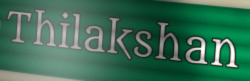
Thilakshan